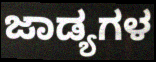
ಜಾಡ್ಯಗಳ